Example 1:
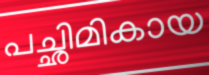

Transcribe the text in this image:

പച്ഛിമികായ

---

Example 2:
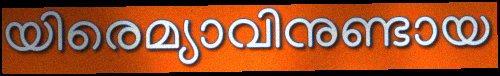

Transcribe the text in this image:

യിരെമ്യാവിനുണ്ടായ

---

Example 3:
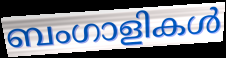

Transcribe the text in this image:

ബംഗാളികൾ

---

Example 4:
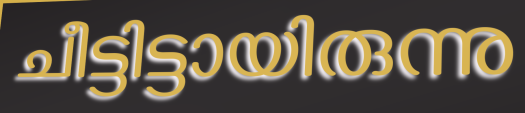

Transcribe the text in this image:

ചീട്ടിട്ടായിരുന്നു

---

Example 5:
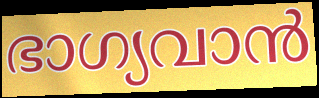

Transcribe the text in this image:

ഭാഗ്യവാൻ